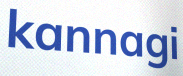
kannagi